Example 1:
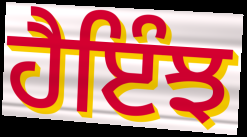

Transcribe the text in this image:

ਹੈਇੰਝ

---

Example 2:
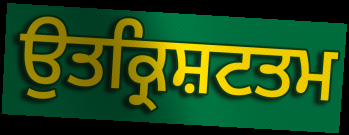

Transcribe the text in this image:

ਉਤਕ੍ਰਿਸ਼ਟਤਮ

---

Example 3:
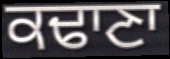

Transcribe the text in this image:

ਕਢਾਣਾ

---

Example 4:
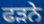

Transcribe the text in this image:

ਫੜਨੇ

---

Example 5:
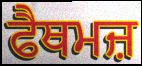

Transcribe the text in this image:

ਫੈਥਮਜ਼